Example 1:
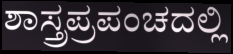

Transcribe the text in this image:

ಶಾಸ್ತ್ರಪ್ರಪಂಚದಲ್ಲಿ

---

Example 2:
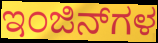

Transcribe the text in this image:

ಇಂಜಿನ್‌ಗಳ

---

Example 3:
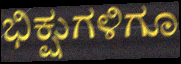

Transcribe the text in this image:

ಭಿಕ್ಷುಗಳಿಗೂ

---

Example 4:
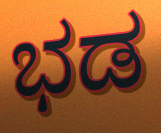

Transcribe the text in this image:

ಭಡ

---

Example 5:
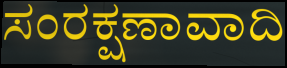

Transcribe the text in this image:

ಸಂರಕ್ಷಣಾವಾದಿ